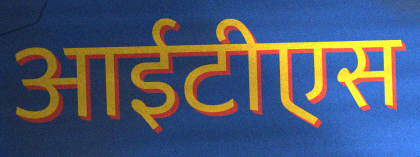
आईटीएस